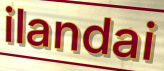
ilandai